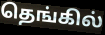
தெங்கில்